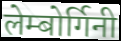
लेम्बोर्गिनी